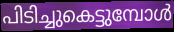
പിടിച്ചുകെട്ടുമ്പോൾ